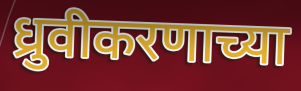
ध्रुवीकरणाच्या